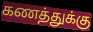
கணத்துக்கு